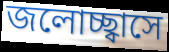
জলোচ্ছ্বাসে